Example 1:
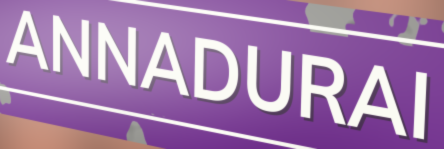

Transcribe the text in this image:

ANNADURAI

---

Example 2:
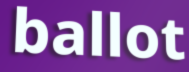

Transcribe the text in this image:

ballot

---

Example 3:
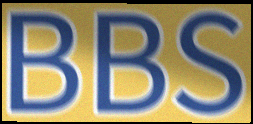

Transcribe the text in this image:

BBS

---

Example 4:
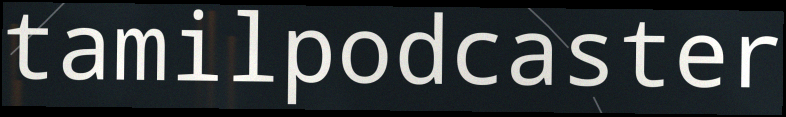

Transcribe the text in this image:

tamilpodcaster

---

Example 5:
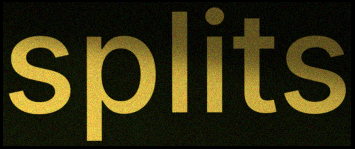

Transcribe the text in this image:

splits